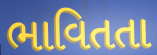
ભાવિતતા